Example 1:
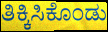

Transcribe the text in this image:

ತಿಕ್ಕಿಸಿಕೊಂಡು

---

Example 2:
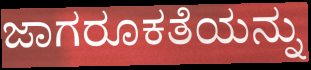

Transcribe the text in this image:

ಜಾಗರೂಕತೆಯನ್ನು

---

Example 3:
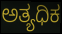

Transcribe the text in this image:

ಅತ್ಯಧಿಕ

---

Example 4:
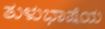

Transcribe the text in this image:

ತುಳುಭಾಷೆಯ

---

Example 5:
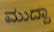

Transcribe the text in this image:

ಮುದ್ದಾ